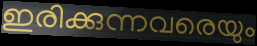
ഇരിക്കുന്നവരെയും